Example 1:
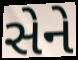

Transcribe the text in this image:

સેને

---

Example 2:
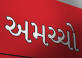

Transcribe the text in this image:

અમચ્ચો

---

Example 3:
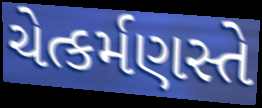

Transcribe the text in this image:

ચેત્કર્મણસ્તે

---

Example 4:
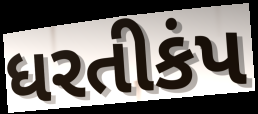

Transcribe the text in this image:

ધરતીકંપ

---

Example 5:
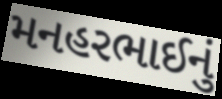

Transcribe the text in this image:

મનહરભાઈનું